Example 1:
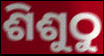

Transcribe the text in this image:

ଶିଶୁଠୁ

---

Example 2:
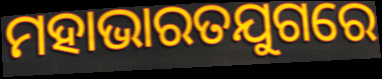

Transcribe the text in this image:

ମହାଭାରତଯୁଗରେ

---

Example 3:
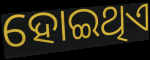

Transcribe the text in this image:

ହୋଇଥିଏ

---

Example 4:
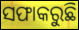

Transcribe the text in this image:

ସଫାକରୁଛି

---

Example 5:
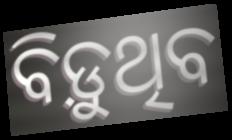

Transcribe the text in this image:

ବିଡ଼ୁଥିବ